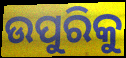
ଉପୁରିକୁ